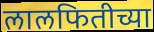
लालफितीच्या